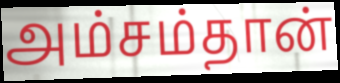
அம்சம்தான்